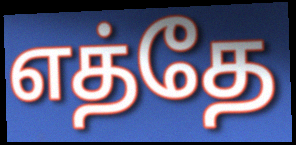
எத்தே